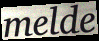
melde